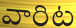
వారిట